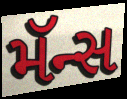
મૅન્સ